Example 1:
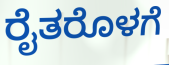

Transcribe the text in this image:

ರೈತರೊಳಗೆ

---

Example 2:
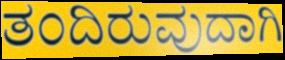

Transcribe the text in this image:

ತಂದಿರುವುದಾಗಿ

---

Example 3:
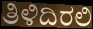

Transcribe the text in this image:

ತಿಳಿದಿರಲಿ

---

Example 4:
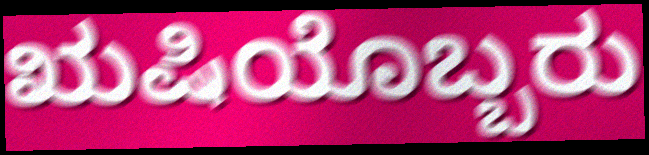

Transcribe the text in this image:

ಋಷಿಯೊಬ್ಬರು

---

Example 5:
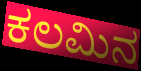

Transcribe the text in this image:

ಕಲಮಿನ